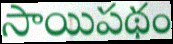
సాయిపథం